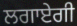
ਲਗਾਏਗੀ